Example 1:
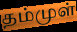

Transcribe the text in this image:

தம்முள்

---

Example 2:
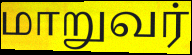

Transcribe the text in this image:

மாறுவர்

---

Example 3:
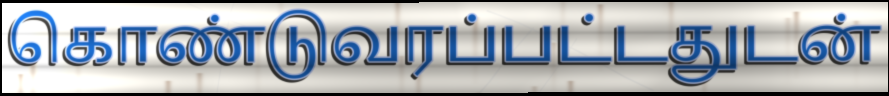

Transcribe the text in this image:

கொண்டுவரப்பட்டதுடன்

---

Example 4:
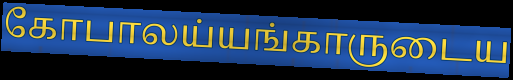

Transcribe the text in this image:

கோபாலய்யங்காருடைய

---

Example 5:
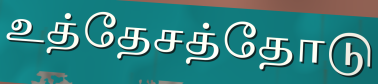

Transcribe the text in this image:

உத்தேசத்தோடு